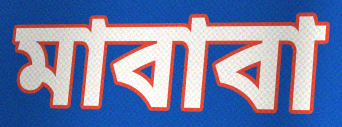
মাবাবা